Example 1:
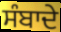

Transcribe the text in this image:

ਸੰਬਾਦੇ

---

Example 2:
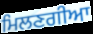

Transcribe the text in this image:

ਮਿਲਣਗੀਆ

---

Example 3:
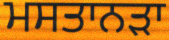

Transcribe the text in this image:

ਮਸਤਾਨੜਾ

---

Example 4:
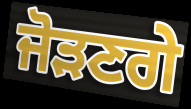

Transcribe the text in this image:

ਜੋੜਣਗੇ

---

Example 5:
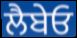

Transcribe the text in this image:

ਲੈਬੇਓ